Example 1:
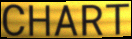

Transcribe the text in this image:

CHART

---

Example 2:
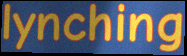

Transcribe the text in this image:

lynching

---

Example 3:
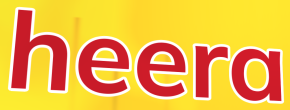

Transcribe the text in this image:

heera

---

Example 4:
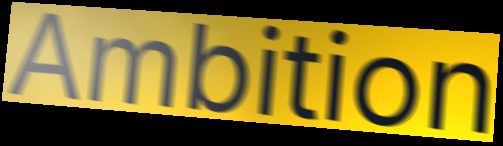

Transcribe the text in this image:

Ambition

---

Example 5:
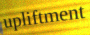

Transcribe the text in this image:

upliftment